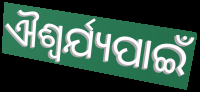
ଐଶ୍ୱର୍ଯ୍ୟପାଇଁ